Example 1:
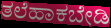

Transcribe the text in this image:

ತಲೆಹಾಕಬೇಡಿ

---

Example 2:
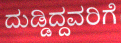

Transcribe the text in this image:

ದುಡ್ಡಿದ್ದವರಿಗೆ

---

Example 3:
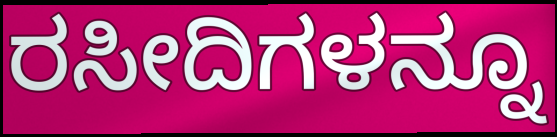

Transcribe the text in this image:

ರಸೀದಿಗಳನ್ನೂ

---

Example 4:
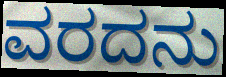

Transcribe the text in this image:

ವರದನು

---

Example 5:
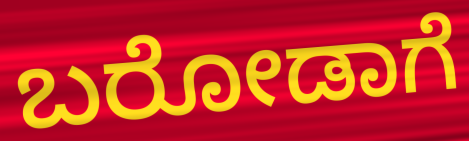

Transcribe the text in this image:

ಬರೋಡಾಗೆ